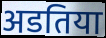
अडतिया